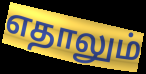
எதாலும்